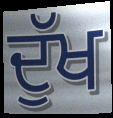
ਦੁੱਖ